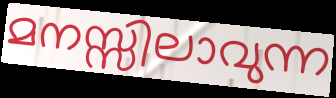
മനസ്സിലാവുന്ന